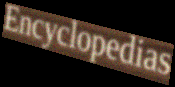
Encyclopedias